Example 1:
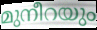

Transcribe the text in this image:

മുനീറയും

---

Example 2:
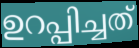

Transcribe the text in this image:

ഉറപ്പിച്ചത്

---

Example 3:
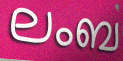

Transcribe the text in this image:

ലംബ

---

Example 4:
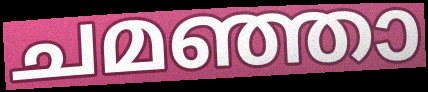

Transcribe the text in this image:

ചമഞ്ഞാ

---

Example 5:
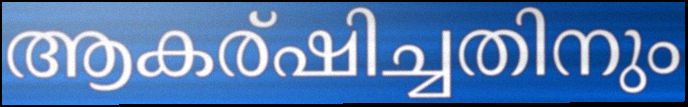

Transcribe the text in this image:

ആകര്ഷിച്ചതിനും